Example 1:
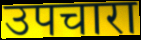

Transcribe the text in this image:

उपचारा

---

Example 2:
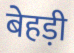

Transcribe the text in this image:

बेहड़ी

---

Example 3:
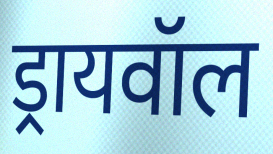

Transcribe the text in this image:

ड्रायवॉल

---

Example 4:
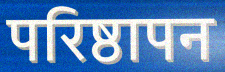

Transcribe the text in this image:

परिष्ठापन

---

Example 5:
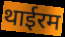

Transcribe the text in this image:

थाईरम